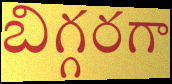
బిగ్గరగా